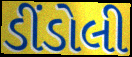
ડીંડોલી